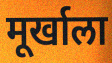
मूर्खाला